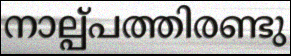
നാല്പ്പത്തിരണ്ടു